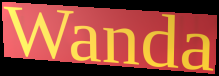
Wanda